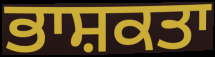
ਭਾਸ਼ਕਤਾ